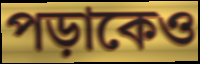
পড়াকেও